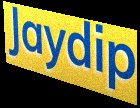
Jaydip